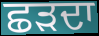
ਛੜਦਾ